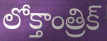
లోక్తాంత్రిక్